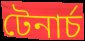
টেনাৰ্চ